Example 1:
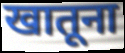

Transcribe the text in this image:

खातूना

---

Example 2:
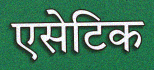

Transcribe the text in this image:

एसेटिक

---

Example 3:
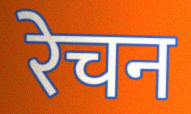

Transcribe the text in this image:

रेचन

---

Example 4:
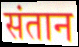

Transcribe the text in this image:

संतान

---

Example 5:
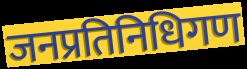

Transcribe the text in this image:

जनप्रतिनिधिगण